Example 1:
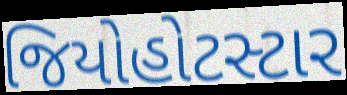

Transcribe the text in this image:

જિયોહોટસ્ટાર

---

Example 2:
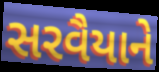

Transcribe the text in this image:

સરવૈયાને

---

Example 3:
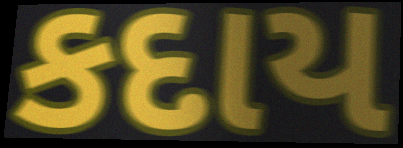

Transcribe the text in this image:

કદાય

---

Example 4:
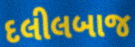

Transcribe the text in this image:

દલીલબાજ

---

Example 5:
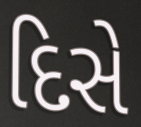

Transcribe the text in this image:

દિસે